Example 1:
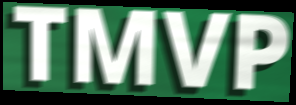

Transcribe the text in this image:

TMVP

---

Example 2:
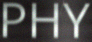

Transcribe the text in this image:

PHY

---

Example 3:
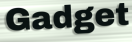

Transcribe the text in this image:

Gadget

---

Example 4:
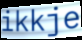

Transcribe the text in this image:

ikkje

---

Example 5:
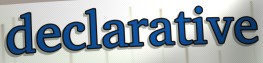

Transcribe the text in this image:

declarative